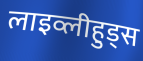
लाइव्लीहुड्स